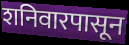
शनिवारपासून